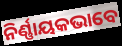
ନିର୍ଣ୍ଣାୟକଭାବେ